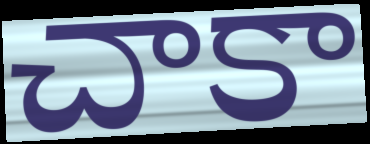
చాకా